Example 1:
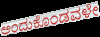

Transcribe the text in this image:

ಅಂದುಕೊಂಡವಳೇ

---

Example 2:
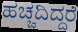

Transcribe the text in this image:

ಹಚ್ಚದಿದ್ದರೆ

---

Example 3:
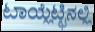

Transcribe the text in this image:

ಟಾಯ್ಲೆಟ್ಟಿನಲ್ಲಿ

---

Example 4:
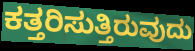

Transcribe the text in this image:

ಕತ್ತರಿಸುತ್ತಿರುವುದು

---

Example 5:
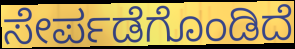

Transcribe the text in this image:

ಸೇರ್ಪಡೆಗೊಂಡಿದೆ